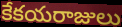
కేకయరాజులు